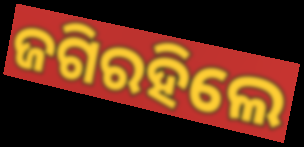
ଜଗିରହିଲେ